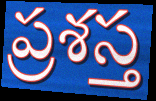
ప్రశస్త